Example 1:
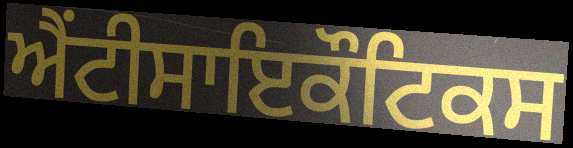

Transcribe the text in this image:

ਐਂਟੀਸਾਇਕੌਟਿਕਸ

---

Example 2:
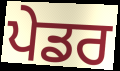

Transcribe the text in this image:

ਪੇਡਰ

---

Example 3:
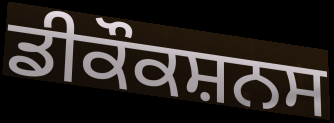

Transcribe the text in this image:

ਡੀਕੌਕਸ਼ਨਸ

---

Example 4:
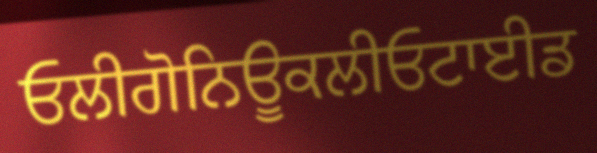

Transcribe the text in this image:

ਓਲੀਗੋਨਿਊਕਲੀਓਟਾਈਡ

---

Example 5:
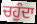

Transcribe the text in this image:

ਚਹੁੰਦਾ